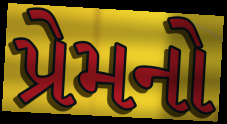
પ્રેમનો